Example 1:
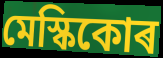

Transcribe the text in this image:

মেস্কিকোৰ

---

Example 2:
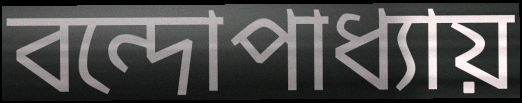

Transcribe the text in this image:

বন্দোপাধ্যায়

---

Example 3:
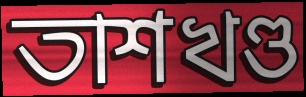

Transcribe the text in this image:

তাশখণ্ড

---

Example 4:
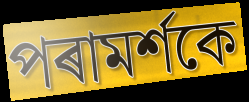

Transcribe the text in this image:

পৰামৰ্শকে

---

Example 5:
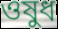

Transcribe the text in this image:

ওষুধ